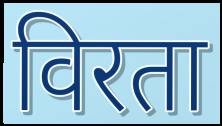
विरता